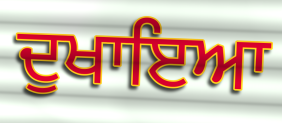
ਦੁਖਾਇਆ